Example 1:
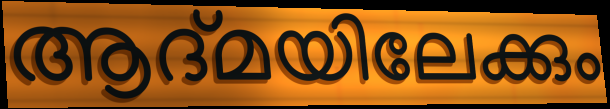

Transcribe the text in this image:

ആദ്മയിലേക്കും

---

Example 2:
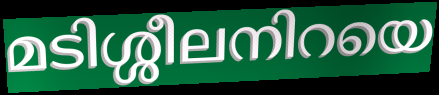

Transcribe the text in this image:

മടിശ്ശീലനിറയെ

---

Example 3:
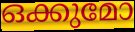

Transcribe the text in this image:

ഒക്കുമോ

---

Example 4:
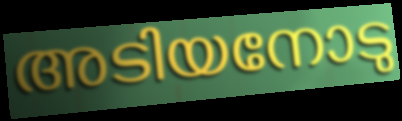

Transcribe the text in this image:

അടിയനോടു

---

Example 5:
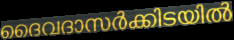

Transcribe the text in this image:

ദൈവദാസർക്കിടയിൽ